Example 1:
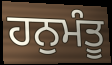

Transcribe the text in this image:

ਹਨੁਮੰਤੂ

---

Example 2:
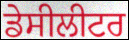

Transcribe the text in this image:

ਡੇਸੀਲੀਟਰ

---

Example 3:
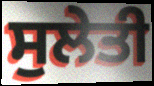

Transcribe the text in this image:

ਸੁਲੇਤੀ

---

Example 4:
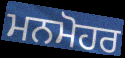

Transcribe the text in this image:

ਮਨਮੋਹਰ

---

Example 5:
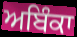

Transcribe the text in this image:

ਅਬਿੰਕਾ